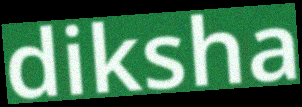
diksha